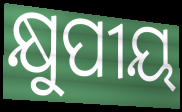
କ୍ଷୁପୀୟ